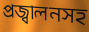
প্রজ্বালনসহ